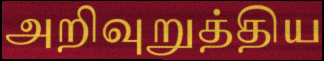
அறிவுறுத்திய